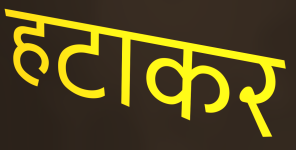
हटाकर